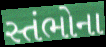
સ્તંભોના